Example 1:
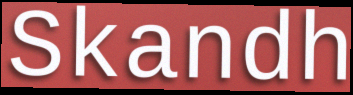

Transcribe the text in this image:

Skandh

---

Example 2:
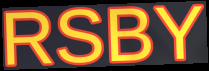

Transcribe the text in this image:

RSBY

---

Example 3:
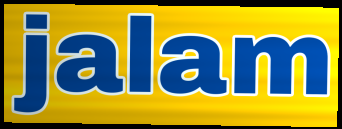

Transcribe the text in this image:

jalam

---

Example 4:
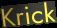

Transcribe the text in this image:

Krick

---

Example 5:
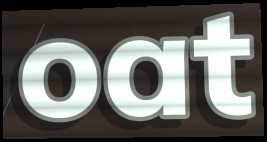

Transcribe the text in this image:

oat